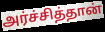
அர்ச்சித்தான்